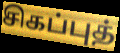
சிகப்புத்